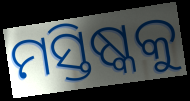
ମସ୍ତିଷ୍କକୁ